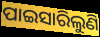
ପାଇସାରିଲୁଣି